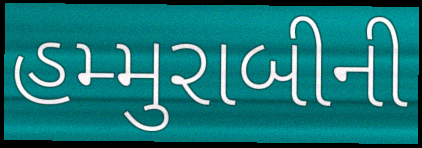
હમ્મુરાબીની